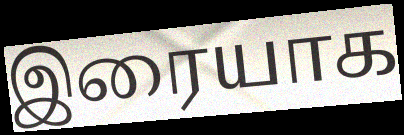
இரையாக